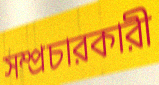
সম্প্রচারকারী